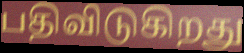
பதிவிடுகிறது